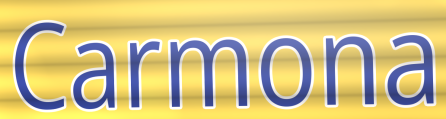
Carmona